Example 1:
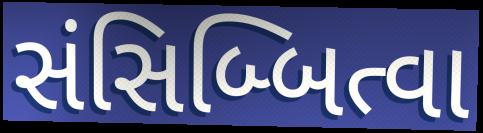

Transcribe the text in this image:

સંસિબ્બિત્વા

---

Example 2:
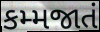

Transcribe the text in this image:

કમ્મજાતં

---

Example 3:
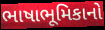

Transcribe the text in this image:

ભાષાભૂમિકાનો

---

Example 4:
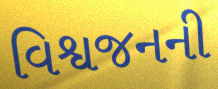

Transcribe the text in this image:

વિશ્વજનની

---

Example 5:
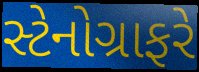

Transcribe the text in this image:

સ્ટેનોગ્રાફરે